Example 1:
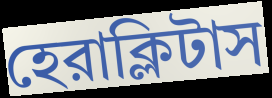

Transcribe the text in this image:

হেরাক্লিটাস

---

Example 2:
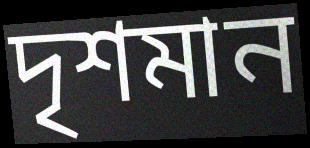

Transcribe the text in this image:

দৃশমান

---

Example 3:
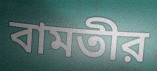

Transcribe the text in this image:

বামতীর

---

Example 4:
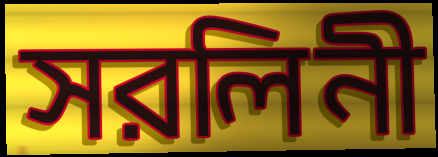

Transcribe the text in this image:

সরলিনী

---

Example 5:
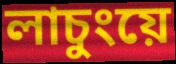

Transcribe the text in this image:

লাচুংয়ে